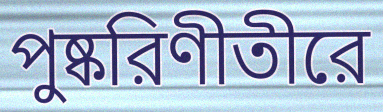
পুষ্করিণীতীরে